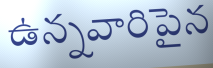
ఉన్నవారిపైన